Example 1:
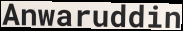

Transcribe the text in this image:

Anwaruddin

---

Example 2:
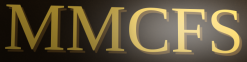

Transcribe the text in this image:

MMCFS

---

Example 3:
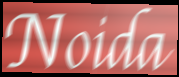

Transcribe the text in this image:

Noida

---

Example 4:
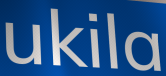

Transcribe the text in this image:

ukila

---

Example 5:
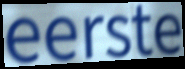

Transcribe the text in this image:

eerste